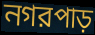
নগরপাড়